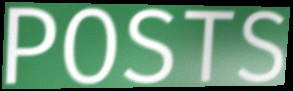
POSTS